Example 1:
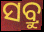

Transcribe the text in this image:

ସବ୍ରୁ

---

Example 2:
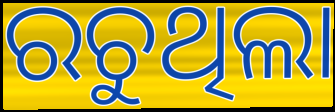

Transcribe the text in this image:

ରଚୁଥିଲା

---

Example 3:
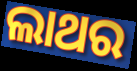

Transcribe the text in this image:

ଲାଥର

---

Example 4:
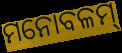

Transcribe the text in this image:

ମନୋବଳମ୍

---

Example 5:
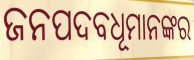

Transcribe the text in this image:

ଜନପଦବଧୂମାନଙ୍କର